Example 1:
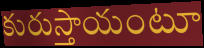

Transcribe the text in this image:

కురుస్తాయంటూ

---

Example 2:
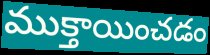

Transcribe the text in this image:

ముక్తాయించడం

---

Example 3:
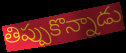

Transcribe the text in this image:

తిప్పుకొన్నాడు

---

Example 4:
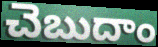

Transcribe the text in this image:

చెబుదాం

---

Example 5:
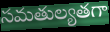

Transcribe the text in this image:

సమతుల్యతగా